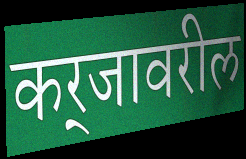
कर्जावरील